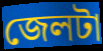
জেলটা